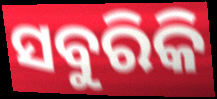
ସବୁରିକି